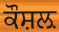
ਕੌਸ਼ਲ਼